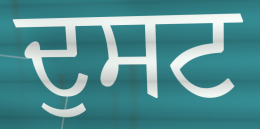
ਦੁਸਟ